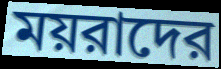
ময়রাদের